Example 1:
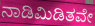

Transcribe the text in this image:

ನಾಡಿಮಿಡಿತವೇ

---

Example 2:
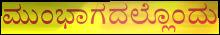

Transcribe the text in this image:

ಮುಂಭಾಗದಲ್ಲೊಂದು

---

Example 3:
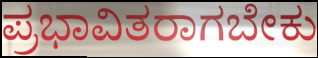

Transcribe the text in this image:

ಪ್ರಭಾವಿತರಾಗಬೇಕು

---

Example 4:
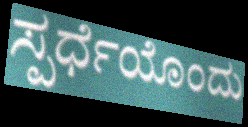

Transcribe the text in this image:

ಸ್ಪರ್ಧೆಯೊಂದು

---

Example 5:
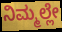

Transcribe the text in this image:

ನಿಮ್ಮಲ್ಲೇ